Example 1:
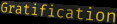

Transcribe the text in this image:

Gratification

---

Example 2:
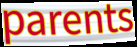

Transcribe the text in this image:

parents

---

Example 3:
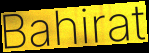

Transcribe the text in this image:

Bahirat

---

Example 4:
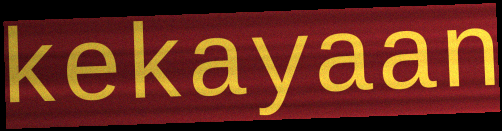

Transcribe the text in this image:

kekayaan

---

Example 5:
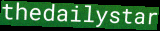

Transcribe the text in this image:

thedailystar